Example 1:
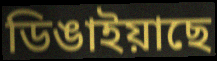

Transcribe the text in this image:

ডিঙাইয়াছে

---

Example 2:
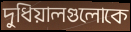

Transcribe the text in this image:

দুধিয়ালগুলোকে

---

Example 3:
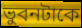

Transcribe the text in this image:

ভুবনটাকে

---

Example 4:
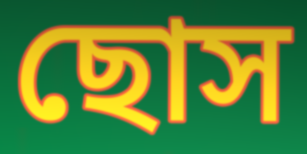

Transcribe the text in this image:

ছোস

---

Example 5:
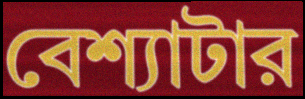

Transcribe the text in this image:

বেশ্যাটার